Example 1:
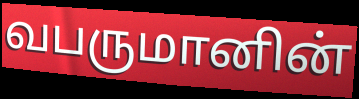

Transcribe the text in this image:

வபருமானின்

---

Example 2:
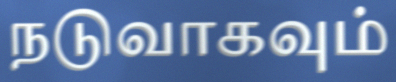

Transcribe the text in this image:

நடுவாகவும்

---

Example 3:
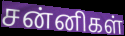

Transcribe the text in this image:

சன்னிகள்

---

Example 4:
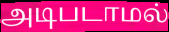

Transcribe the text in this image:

அடிபடாமல்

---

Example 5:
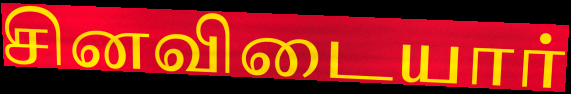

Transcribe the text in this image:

சினவிடையார்